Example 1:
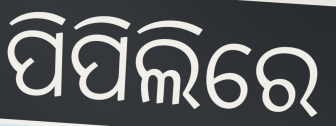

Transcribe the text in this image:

ପିପିଲିରେ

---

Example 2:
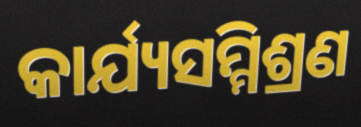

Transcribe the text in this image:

କାର୍ଯ୍ୟସମ୍ମିଶ୍ରଣ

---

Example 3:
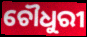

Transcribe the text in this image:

ଚୌଧୁରୀ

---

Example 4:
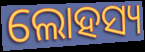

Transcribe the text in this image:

ଲୋହସ୍ୟ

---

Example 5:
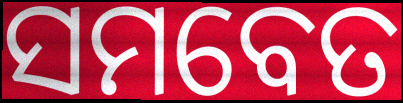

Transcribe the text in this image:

ସମବେତ